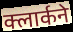
क्लार्कने